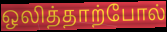
ஒலித்தாற்போல்